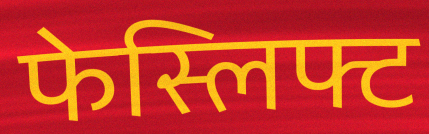
फेस्लिफ्ट